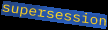
supersession